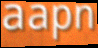
aapn